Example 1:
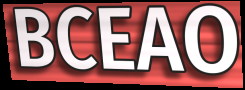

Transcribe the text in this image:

BCEAO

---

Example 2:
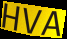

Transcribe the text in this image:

HVA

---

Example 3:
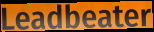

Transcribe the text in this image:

Leadbeater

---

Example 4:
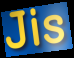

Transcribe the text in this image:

Jis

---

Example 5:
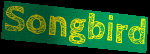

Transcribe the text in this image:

Songbird